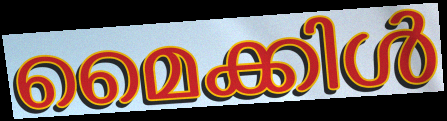
മൈക്കിൾ